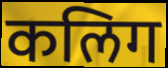
कलिग